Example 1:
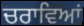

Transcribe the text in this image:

ਚਰਾਵਿਆਂ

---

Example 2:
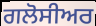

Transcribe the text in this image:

ਗਲੋਸੀਅਰ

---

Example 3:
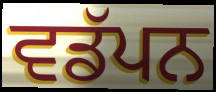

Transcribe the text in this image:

ਵਡੱਪਨ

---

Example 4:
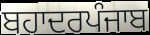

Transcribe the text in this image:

ਬਹਾਦਰਪੰਜਾਬ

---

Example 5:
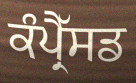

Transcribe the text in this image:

ਕੰਪ੍ਰੈੱਸਡ